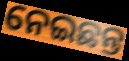
ନେଇଛନ୍ତ